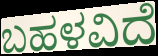
ಬಹಳವಿದೆ